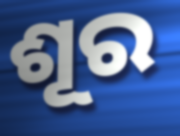
ଶୂର